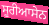
ਸੂਰੀਆਸੇਨ